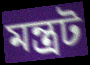
মন্ত্রট